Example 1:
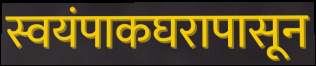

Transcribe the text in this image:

स्वयंपाकघरापासून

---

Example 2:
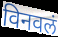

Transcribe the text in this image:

विनवलं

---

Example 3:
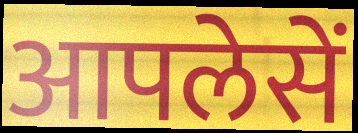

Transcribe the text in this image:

आपलेसें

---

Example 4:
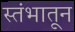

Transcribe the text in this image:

स्तंभातून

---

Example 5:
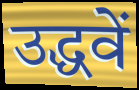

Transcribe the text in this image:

उद्धवें